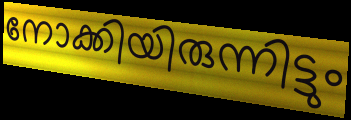
നോക്കിയിരുന്നിട്ടും